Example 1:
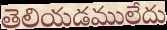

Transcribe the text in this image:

తెలియడములేదు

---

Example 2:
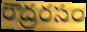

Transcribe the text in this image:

రౌద్రరసం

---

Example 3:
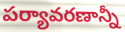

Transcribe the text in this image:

పర్యావరణాన్నీ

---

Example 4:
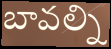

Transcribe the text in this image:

బావల్ని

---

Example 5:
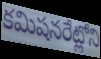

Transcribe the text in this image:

కమిషనరేట్లోని